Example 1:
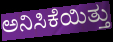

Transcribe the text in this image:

ಅನಿಸಿಕೆಯಿತ್ತು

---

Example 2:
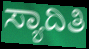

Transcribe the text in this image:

ಸ್ಯಾದಿತಿ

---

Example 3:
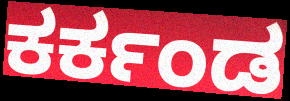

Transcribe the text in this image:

ಕರ್ಕಂಡ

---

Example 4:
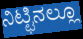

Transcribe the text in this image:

ನಿಟ್ಟಿನಲ್ಲೂ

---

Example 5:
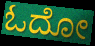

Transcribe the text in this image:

ಓದೋ